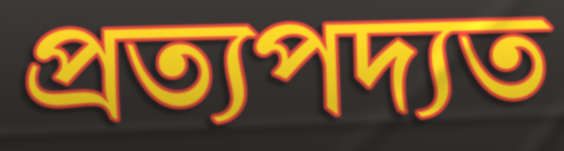
প্রত্যপদ্যত